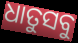
ଧାତୁସବୁ